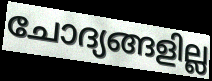
ചോദ്യങ്ങളില്ല